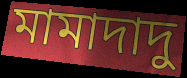
মামাদাদু